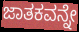
ಜಾತಕವನ್ನೇ